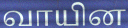
வாயின